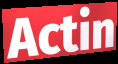
Actin